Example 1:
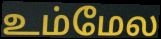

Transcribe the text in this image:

உம்மேல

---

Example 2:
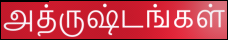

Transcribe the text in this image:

அத்ருஷ்டங்கள்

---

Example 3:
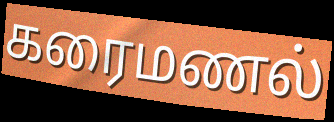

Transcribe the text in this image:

கரைமணல்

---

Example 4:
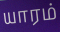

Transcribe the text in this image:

யாரம்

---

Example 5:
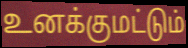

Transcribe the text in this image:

உனக்குமட்டும்